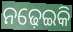
ନଢ଼େଇକି